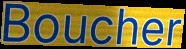
Boucher